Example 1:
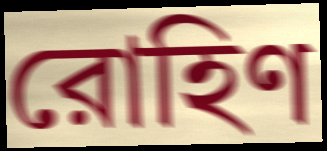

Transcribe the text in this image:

রোহিণ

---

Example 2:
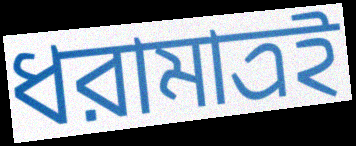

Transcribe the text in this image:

ধরামাত্রই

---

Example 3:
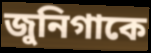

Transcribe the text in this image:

জুনিগাকে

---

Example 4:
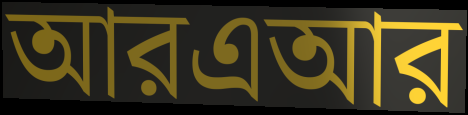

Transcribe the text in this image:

আরএআর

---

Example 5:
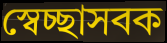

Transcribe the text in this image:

স্বেচ্ছাসবক